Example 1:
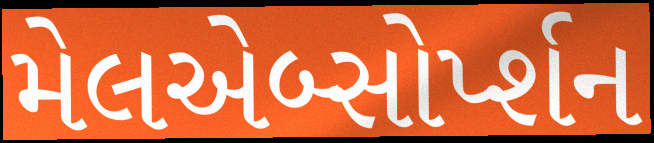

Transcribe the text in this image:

મેલએબ્સોર્પ્શન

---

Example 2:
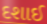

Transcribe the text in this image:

દશાઈ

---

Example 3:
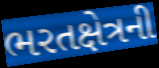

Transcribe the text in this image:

ભરતક્ષેત્રની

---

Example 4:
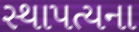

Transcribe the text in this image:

સ્થાપત્યના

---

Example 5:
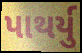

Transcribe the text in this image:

પાથર્યુ